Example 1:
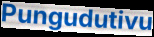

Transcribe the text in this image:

Pungudutivu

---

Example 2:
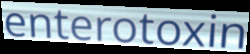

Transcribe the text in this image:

enterotoxin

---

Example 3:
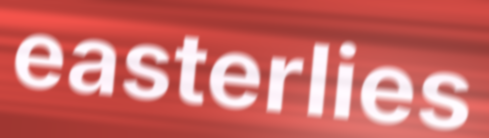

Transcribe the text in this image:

easterlies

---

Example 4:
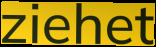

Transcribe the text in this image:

ziehet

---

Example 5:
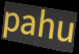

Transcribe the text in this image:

pahu